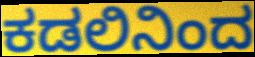
ಕಡಲಿನಿಂದ